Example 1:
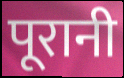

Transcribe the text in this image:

पूरानी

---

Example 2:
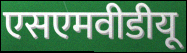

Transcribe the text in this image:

एसएमवीडीयू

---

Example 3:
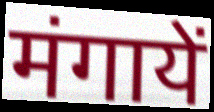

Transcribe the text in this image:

मंगायें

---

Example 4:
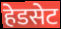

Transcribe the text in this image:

हेडसेट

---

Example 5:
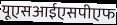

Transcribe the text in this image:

यूएसआईएसपीएफ